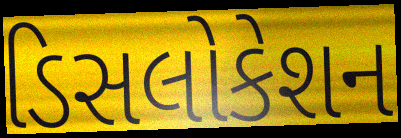
ડિસલોકેશન